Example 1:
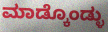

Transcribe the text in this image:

ಮಾಡ್ಕೊಂಡ್ಳು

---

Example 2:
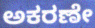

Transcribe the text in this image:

ಅಕರಣೇ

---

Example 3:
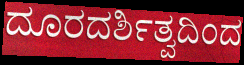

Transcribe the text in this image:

ದೂರದರ್ಶಿತ್ವದಿಂದ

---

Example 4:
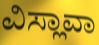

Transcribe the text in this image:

ವಿಸ್ಲಾವಾ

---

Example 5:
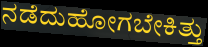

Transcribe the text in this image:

ನಡೆದುಹೋಗಬೇಕಿತ್ತು